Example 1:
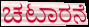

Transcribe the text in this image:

ಚಟಾರನೆ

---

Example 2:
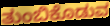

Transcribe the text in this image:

ತುಂಬಿಕೊಡುವ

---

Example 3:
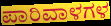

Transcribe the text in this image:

ಪಾರಿವಾಳಗಳ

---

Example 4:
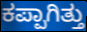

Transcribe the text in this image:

ಕಪ್ಪಾಗಿತ್ತು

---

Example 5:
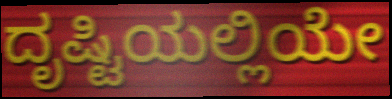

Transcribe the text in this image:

ದೃಷ್ಟಿಯಲ್ಲಿಯೇ